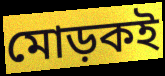
মোড়কই